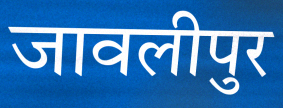
जावलीपुर